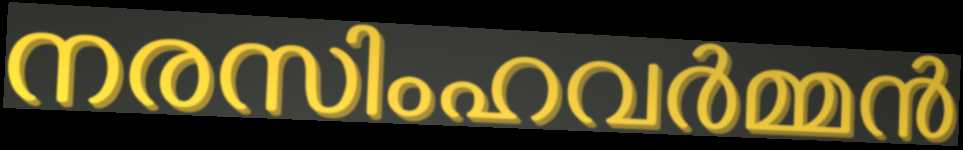
നരസിംഹവർമ്മൻ